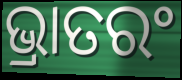
ଭ୍ରାତରଂ